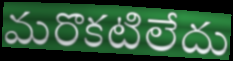
మరొకటిలేదు